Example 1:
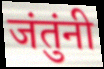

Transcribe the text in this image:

जंतुंनी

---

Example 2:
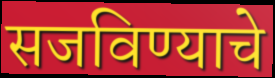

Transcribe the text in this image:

सजविण्याचे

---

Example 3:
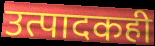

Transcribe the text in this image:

उत्पादकही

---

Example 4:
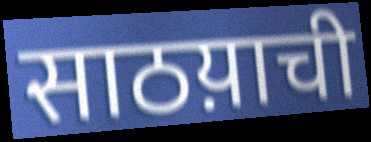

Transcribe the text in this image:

साठय़ाची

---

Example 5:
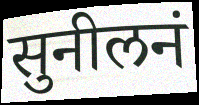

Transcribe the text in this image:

सुनीलनं